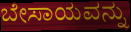
ಬೇಸಾಯವನ್ನು